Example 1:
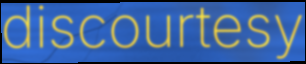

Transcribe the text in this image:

discourtesy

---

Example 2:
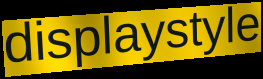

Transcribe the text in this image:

displaystyle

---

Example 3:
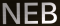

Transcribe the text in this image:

NEB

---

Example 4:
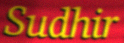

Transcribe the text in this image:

Sudhir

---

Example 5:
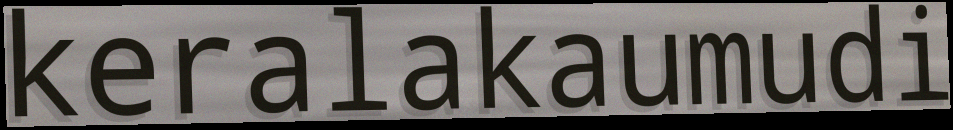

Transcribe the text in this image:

keralakaumudi